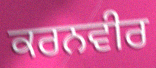
ਕਰਨਵੀਰ